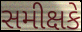
સમીક્ષકે